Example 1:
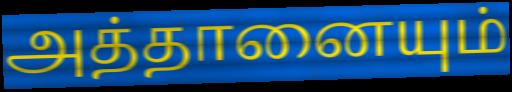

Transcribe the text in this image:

அத்தானையும்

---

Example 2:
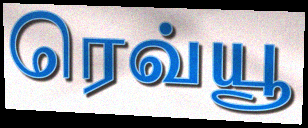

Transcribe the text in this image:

ரெவ்யூ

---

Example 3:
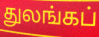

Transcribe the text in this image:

துலங்கப்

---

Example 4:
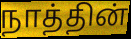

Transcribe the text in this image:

நாத்தின்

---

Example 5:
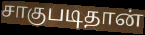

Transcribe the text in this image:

சாகுபடிதான்